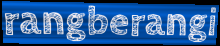
rangberangi